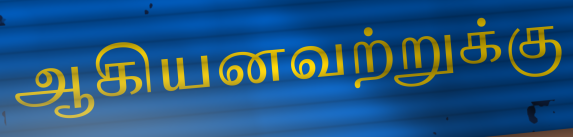
ஆகியனவற்றுக்கு